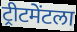
ट्रीटमेंटला